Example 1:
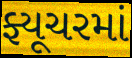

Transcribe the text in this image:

ફ્યૂચરમાં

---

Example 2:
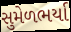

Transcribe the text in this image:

સુમેળભર્યા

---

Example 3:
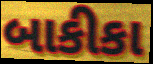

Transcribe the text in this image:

બાકીકા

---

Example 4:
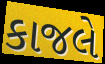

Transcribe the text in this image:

કાજલે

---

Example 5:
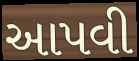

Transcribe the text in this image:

આપવી